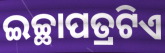
ଇଚ୍ଛାପତ୍ରଟିଏ